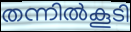
തന്നിൽകൂടി